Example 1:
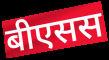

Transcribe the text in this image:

बीएसस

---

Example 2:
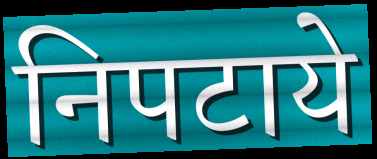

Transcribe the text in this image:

निपटाये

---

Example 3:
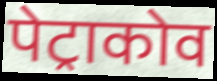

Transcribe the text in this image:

पेट्राकोव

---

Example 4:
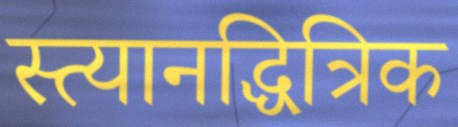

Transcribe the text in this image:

स्त्यानद्धित्रिक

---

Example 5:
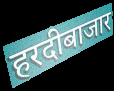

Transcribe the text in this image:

हरदीबाजार